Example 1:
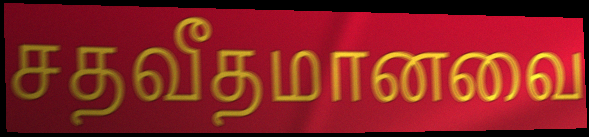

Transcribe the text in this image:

சதவீதமானவை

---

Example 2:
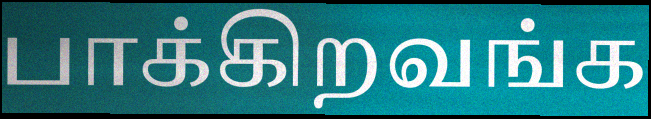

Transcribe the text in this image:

பாக்கிறவங்க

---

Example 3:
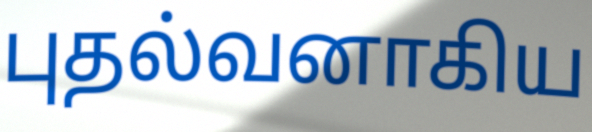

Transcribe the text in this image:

புதல்வனாகிய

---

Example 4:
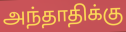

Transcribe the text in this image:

அந்தாதிக்கு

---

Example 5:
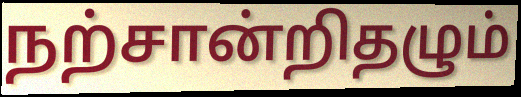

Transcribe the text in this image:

நற்சான்றிதழும்